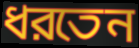
ধরতেন